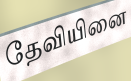
தேவியினை